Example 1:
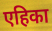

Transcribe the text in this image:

एहिका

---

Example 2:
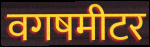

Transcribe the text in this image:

वगषमीटर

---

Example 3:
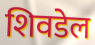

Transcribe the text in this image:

शिवडेल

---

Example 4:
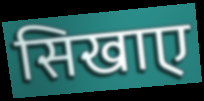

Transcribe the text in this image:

सिखाए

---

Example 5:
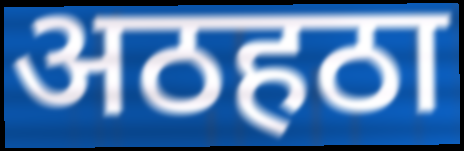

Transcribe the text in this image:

अठहठा